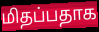
மிதப்பதாக